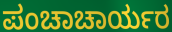
ಪಂಚಾಚಾರ್ಯರ